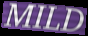
MILD